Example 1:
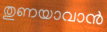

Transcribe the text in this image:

തുണയാവാൻ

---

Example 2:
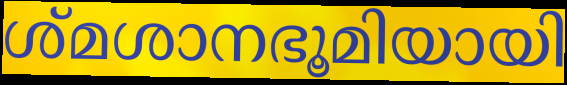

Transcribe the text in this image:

ശ്മശാനഭൂമിയായി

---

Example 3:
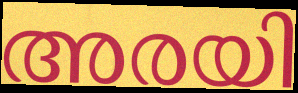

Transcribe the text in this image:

അരയി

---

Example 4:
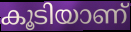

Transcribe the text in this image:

കൂടിയാണ്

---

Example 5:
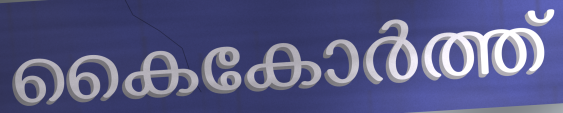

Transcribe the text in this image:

കൈകോർത്ത്